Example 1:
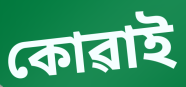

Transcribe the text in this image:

কোৱাই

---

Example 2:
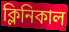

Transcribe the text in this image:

ক্লিনিকাল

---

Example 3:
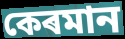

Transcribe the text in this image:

কেৰমান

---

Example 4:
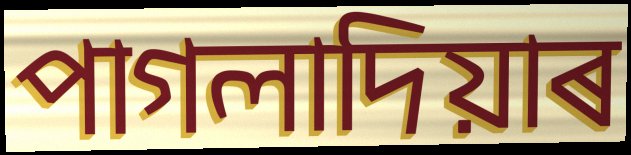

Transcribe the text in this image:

পাগলাদিয়াৰ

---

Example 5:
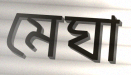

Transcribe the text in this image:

মেঘা